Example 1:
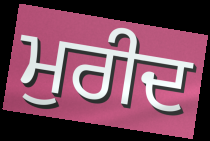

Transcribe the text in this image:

ਮੁਰੀਦ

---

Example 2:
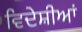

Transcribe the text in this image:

ਵਿਦੇਸ਼ੀਆਂ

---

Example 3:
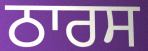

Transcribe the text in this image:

ਠਾਰਸ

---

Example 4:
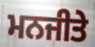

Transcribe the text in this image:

ਮਨਜੀਤੇ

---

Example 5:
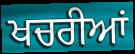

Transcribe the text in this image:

ਖਚਰੀਆਂ